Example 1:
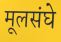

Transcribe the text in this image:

मूलसंघे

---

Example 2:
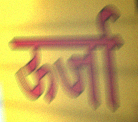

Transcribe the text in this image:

ऊर्जा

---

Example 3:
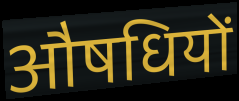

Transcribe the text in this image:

औषधियों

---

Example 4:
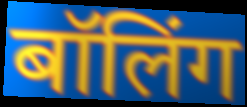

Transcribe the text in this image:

बॉलिंग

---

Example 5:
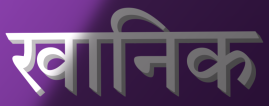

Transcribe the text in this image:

खानिक